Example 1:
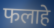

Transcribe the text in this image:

फलाहे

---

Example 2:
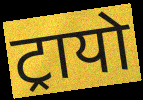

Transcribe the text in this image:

ट्रायो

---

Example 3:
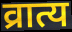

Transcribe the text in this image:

व्रात्य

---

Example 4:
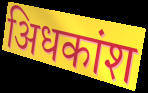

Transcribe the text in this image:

अिधकांश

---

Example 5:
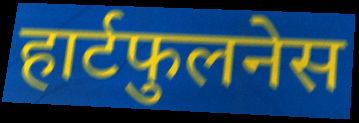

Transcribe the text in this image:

हार्टफुलनेस